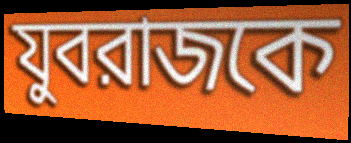
যুবরাজকে